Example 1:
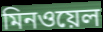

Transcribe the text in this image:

মিনওয়েল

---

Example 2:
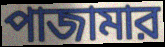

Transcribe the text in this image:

পাজামার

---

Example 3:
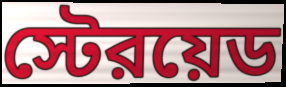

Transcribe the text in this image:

স্টেরয়েড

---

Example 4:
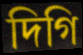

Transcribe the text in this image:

দিগি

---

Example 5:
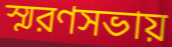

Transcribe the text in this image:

স্মরণসভায়